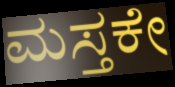
ಮಸ್ತಕೇ